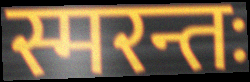
स्मरन्तः